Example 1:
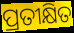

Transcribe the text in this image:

ପ୍ରତୀକ୍ଷିତ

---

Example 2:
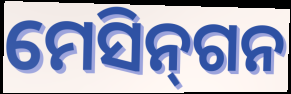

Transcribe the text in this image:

ମେସିନ୍‌ଗନ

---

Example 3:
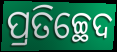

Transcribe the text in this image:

ପ୍ରତିଚ୍ଛେଦ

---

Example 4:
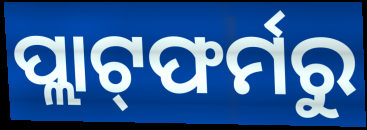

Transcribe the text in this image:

ପ୍ଲାଟ୍‌ଫର୍ମରୁ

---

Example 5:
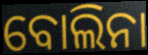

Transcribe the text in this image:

ବୋଲିନା